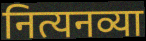
नित्यनव्या